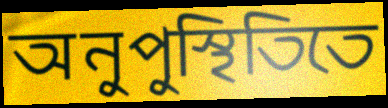
অনুপুস্থিতিতে